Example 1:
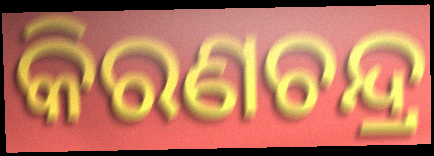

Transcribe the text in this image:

କିରଣଚନ୍ଦ୍ର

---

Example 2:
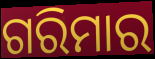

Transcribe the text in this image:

ଗରିମାର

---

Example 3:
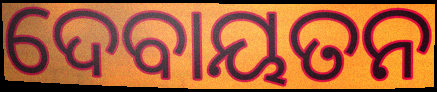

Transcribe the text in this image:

ଦେବାୟତନ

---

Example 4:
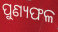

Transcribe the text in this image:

ପୁଣ୍ୟଫଳ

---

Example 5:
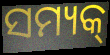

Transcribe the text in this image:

ସମ୍ୟକ୍